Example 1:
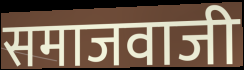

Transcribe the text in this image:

समाजवाजी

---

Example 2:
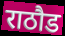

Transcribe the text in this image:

राठौड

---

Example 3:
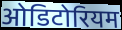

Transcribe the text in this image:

ओडिटोरियम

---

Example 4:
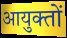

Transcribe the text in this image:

आयुक्तों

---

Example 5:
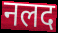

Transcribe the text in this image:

नलद